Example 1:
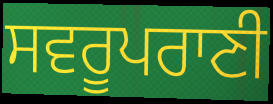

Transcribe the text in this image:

ਸਵਰੂਪਰਾਣੀ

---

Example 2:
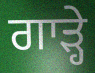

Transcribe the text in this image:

ਗਾੜ੍ਹੇ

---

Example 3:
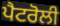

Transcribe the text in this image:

ਪੈਟਰੋਲੀ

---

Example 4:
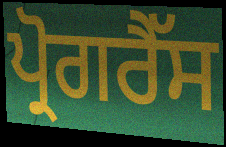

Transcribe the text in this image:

ਪ੍ਰੋਗਰੈੱਸ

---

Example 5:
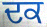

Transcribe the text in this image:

ਦਕ